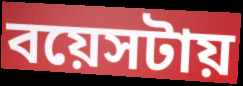
বয়েসটায়